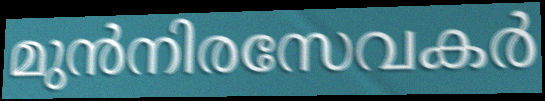
മുൻനിരസേവകർ